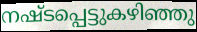
നഷ്ടപ്പെട്ടുകഴിഞ്ഞു